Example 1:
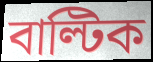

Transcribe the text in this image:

বাল্টিক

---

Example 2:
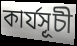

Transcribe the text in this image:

কাৰ্যসূচী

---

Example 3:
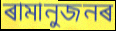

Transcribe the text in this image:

ৰামানুজনৰ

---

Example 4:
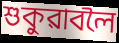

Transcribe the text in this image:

শুকুৱাবলৈ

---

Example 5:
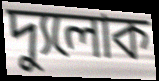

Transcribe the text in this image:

দ্যুলোক